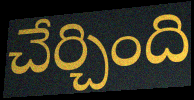
చేర్చింది